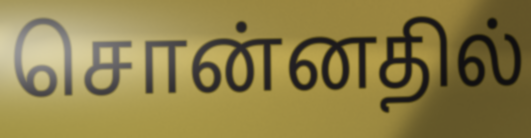
சொன்னதில்